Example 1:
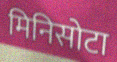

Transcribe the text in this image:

मिनिसोटा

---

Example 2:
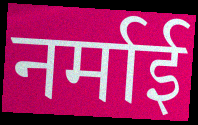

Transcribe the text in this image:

नर्माई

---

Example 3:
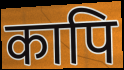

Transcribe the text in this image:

कापि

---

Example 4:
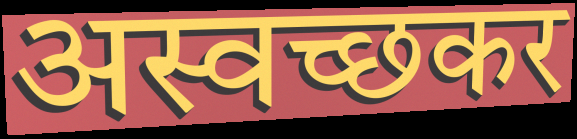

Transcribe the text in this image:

अस्वच्छकर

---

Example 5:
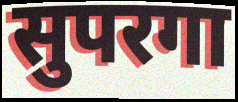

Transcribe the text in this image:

सुपरगा